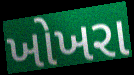
ખોખરા